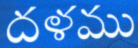
దళము